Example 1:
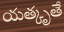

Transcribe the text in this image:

యత్కృతే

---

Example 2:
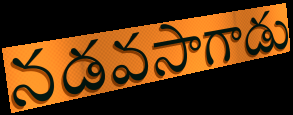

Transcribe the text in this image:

నడవసాగాడు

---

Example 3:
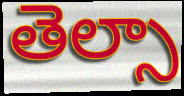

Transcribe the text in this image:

తెల్సా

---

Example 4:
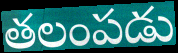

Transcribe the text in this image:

తలంపడు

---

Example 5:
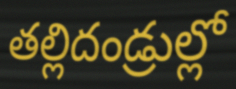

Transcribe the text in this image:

తల్లిదండ్రుల్లో